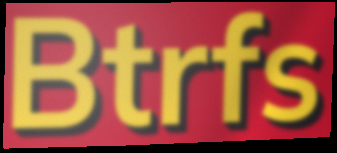
Btrfs